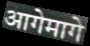
आगेमागे